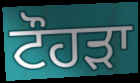
ਟੌਹਡ਼ਾ